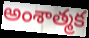
అంశాత్మక